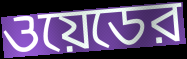
ওয়েডের